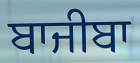
ਬਾਜੀਬਾ